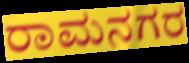
ರಾಮನಗರ